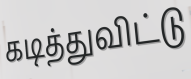
கடித்துவிட்டு